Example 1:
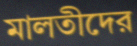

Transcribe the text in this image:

মালতীদের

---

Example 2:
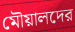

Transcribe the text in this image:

মৌয়ালদের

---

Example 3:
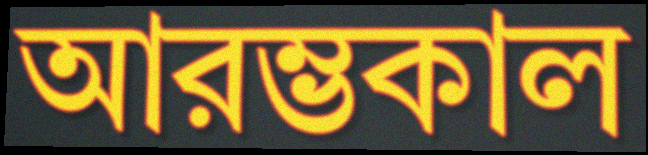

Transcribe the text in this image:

আরম্ভকাল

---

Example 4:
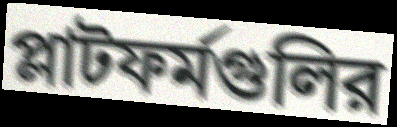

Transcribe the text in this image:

প্লাটফর্মগুলির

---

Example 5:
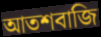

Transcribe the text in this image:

আতশবাজি